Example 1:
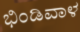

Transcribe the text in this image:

ಭಿಂಡಿವಾಳ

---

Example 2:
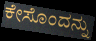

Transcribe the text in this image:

ಕೇಸೊಂದನ್ನು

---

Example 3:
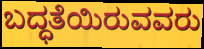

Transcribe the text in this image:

ಬದ್ಧತೆಯಿರುವವರು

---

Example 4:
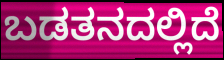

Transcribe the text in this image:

ಬಡತನದಲ್ಲಿದೆ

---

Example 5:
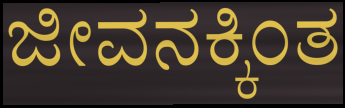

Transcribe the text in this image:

ಜೀವನಕ್ಕಿಂತ